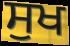
ਸੁਖ